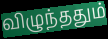
விழுந்ததும்